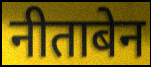
नीताबेन